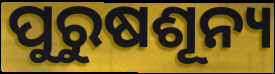
ପୁରୁଷଶୂନ୍ୟ